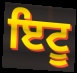
ਇਟੂ